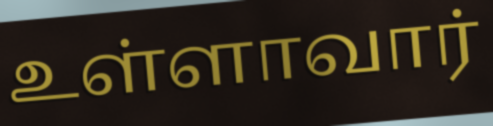
உள்ளாவார்